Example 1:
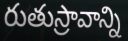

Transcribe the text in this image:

రుతుస్రావాన్ని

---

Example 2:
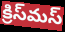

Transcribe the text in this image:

క్రిస్‌మస్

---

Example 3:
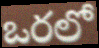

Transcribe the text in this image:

ఒరలో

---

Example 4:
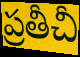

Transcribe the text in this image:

ప్రతీచీ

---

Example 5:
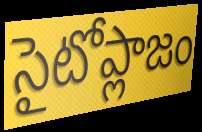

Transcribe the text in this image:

సైటోప్లాజం